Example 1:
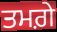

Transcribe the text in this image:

ਤਮਗ਼ੇ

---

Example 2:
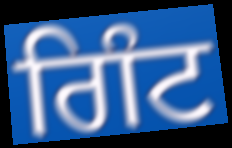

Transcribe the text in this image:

ਗਿੰਟ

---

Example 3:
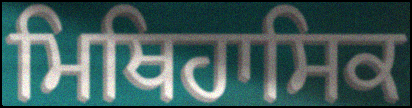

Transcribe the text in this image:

ਮਿਥਿਹਾਸਿਕ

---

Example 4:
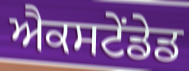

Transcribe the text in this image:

ਐਕਸਟੇਂਡੇਡ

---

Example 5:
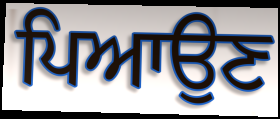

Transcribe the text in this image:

ਪਿਆਉਣ